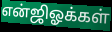
என்ஜிஓக்கள்